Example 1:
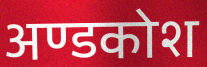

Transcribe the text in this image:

अण्डकोश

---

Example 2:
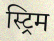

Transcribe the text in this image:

स्ट्रिम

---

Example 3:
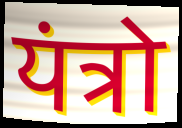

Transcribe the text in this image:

यंत्रो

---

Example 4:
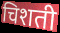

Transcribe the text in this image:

चिशती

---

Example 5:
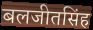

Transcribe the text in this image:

बलजीतसिंह